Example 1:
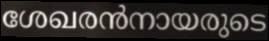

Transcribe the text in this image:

ശേഖരൻനായരുടെ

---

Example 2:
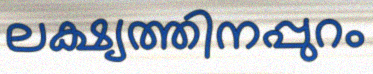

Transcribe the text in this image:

ലക്ഷ്യത്തിനപ്പുറം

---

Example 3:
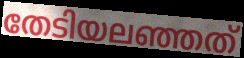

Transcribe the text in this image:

തേടിയലഞ്ഞത്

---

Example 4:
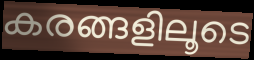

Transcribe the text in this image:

കരങ്ങളിലൂടെ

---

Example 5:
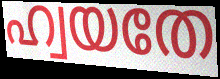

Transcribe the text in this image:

ഹ്വയതേ